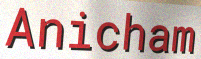
Anicham